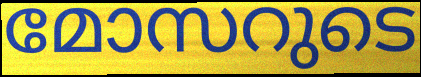
മോസറുടെ